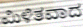
ಮಿಳಿತವಾದ